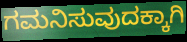
ಗಮನಿಸುವುದಕ್ಕಾಗಿ